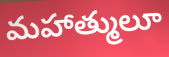
మహాత్ములూ